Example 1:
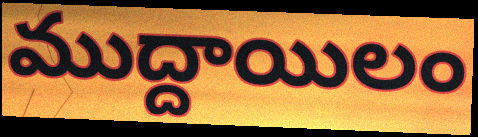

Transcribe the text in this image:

ముద్దాయిలం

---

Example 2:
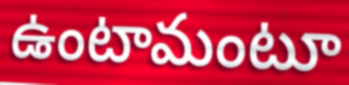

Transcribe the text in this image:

ఉంటామంటూ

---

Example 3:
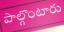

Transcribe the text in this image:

పాల్గొంటారు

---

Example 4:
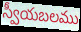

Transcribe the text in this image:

స్వీయబలము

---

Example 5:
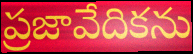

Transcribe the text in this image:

ప్రజావేదికను